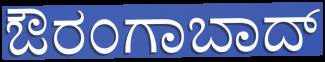
ಔರಂಗಾಬಾದ್